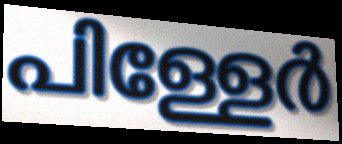
പിള്ളേർ